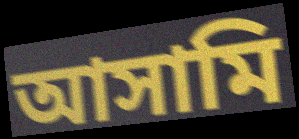
আসামি